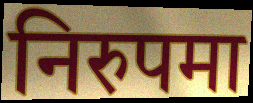
निरुपमा